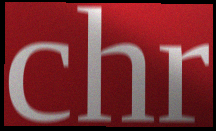
chr